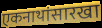
एकनाथांसारखा